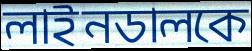
লাইনডালকে